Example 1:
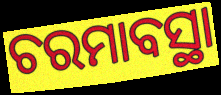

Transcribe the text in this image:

ଚରମାବସ୍ଥା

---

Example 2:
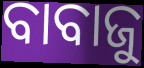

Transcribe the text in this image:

ବାବାଜୁ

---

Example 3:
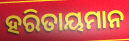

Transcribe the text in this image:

ହରିତାୟମାନ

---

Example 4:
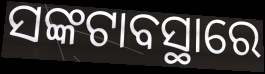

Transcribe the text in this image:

ସଙ୍କଟାବସ୍ଥାରେ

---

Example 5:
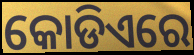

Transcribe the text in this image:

କୋଡିଏରେ